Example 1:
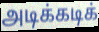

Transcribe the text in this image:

அடிக்கடிக்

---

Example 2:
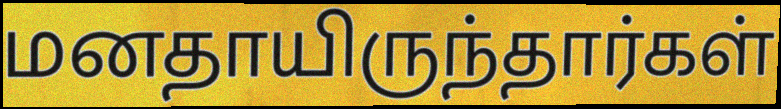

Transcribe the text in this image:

மனதாயிருந்தார்கள்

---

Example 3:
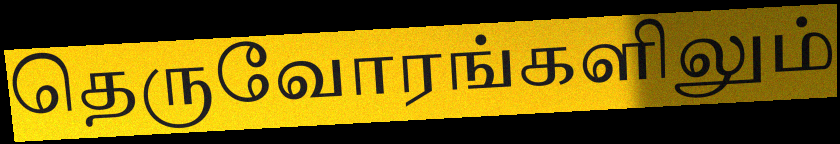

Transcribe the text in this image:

தெருவோரங்களிலும்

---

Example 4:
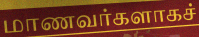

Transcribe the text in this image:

மாணவர்களாகச்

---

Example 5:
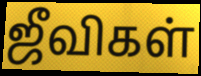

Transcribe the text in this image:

ஜீவிகள்